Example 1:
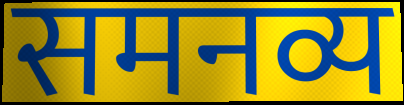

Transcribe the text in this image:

समनव्य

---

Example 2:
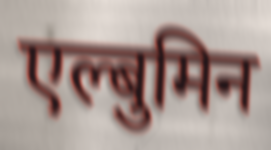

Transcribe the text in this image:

एल्बुमिन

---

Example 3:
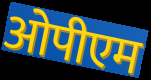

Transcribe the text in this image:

ओपीएम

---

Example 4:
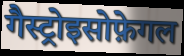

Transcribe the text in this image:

गैस्ट्रोइसोफ़ेगल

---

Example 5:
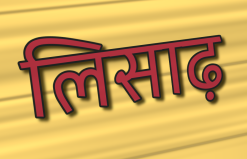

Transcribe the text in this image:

लिसाढ़